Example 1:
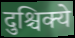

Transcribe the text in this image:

दुश्चिक्ये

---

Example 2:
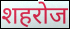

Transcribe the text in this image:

शहरोज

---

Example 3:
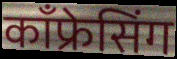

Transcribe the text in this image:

कॉंफ्रेसिंग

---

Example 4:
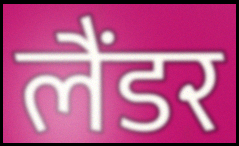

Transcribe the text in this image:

लैंडर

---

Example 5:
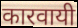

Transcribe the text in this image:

कारवायी